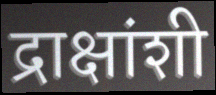
द्राक्षांशी